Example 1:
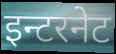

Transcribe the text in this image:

इन्टरनेट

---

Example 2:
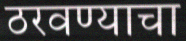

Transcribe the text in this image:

ठरवण्याचा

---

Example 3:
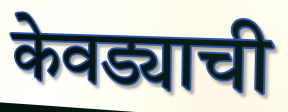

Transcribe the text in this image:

केवड्याची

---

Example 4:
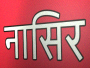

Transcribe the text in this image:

नासिर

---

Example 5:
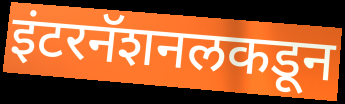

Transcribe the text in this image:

इंटरनॅशनलकडून